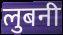
लुबनी